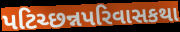
પટિચ્છન્નપરિવાસકથા